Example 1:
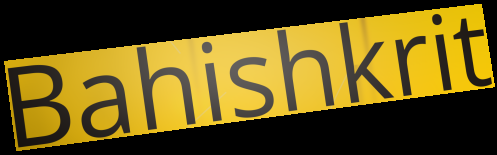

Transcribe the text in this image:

Bahishkrit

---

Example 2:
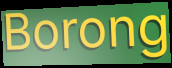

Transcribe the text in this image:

Borong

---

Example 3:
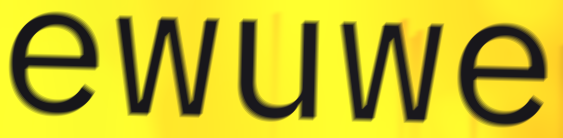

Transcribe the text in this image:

ewuwe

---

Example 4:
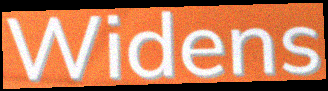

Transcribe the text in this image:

Widens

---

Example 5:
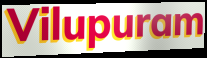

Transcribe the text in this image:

Vilupuram